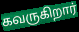
கவருகிறார்